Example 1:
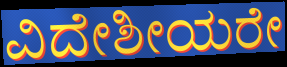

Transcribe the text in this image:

ವಿದೇಶೀಯರೇ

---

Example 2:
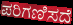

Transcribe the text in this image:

ಪರಿಗಣಿಸದೆ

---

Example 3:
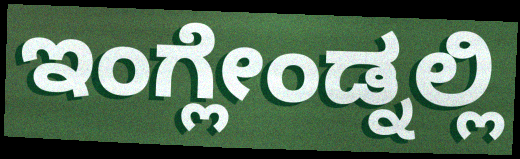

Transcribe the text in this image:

ಇಂಗ್ಲೇಂಡ್ನಲ್ಲಿ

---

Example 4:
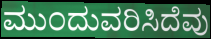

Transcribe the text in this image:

ಮುಂದುವರಿಸಿದೆವು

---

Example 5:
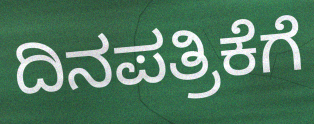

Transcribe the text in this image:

ದಿನಪತ್ರಿಕೆಗೆ